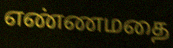
எண்ணமதை